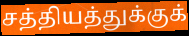
சத்தியத்துக்குக்